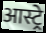
आस्ट्रे